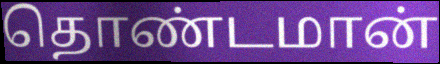
தொண்டமான்